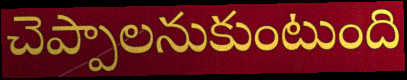
చెప్పాలనుకుంటుంది